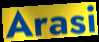
Arasi